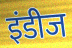
इंडीज